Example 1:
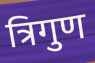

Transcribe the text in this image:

त्रिगुण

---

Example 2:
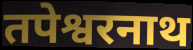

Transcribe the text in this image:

तपेश्वरनाथ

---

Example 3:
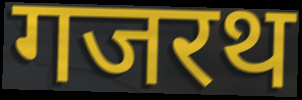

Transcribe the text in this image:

गजरथ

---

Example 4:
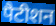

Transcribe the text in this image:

पैटीशन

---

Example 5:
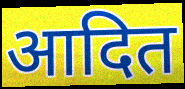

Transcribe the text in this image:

आदित